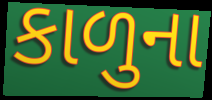
કાળુના